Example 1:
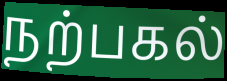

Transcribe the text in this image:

நற்பகல்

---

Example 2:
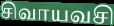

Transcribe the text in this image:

சிவாயவசி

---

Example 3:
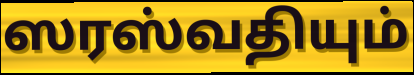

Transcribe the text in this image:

ஸரஸ்வதியும்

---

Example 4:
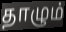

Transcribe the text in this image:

தாழும்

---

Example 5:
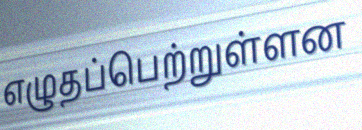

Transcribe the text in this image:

எழுதப்பெற்றுள்ளன